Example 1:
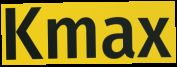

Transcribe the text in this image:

Kmax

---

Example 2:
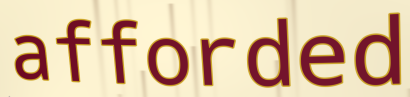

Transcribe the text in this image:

afforded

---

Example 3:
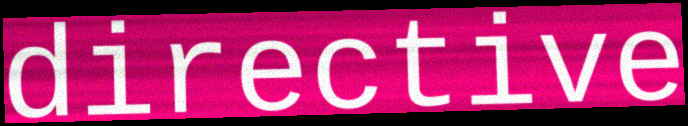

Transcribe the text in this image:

directive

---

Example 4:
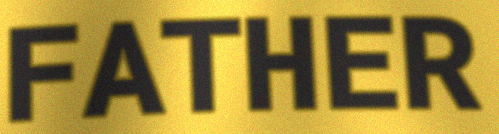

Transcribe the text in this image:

FATHER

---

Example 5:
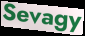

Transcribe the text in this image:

Sevagy